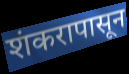
शंकरापासून